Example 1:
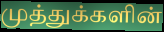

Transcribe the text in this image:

முத்துக்களின்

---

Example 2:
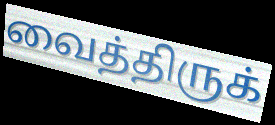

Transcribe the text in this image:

வைத்திருக்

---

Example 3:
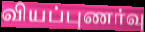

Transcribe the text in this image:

வியப்புணர்வு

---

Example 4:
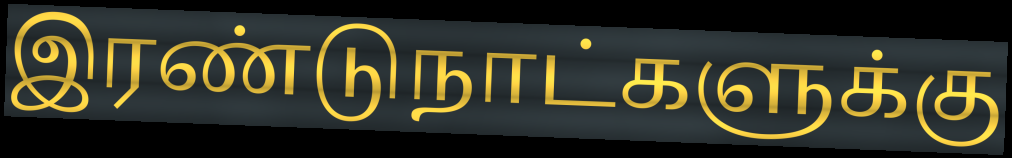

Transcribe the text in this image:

இரண்டுநாட்களுக்கு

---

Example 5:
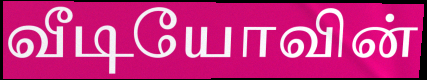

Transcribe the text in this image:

வீடியோவின்